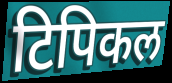
टिपिकल